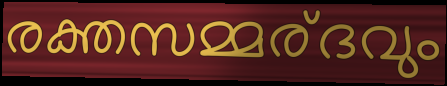
രക്തസമ്മര്ദവും